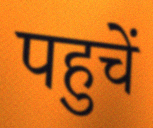
पहुचें